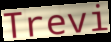
Trevi